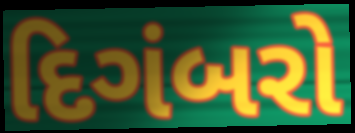
દિગંબરો